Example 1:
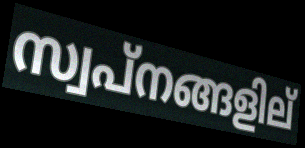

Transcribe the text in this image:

സ്വപ്നങ്ങളില്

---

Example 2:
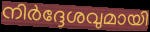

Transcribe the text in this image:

നിർദ്ദേശവുമായി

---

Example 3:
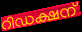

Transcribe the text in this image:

റിഡക്ഷന്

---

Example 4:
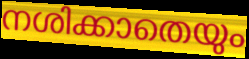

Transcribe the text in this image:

നശിക്കാതെയും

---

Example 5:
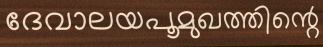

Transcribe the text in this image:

ദേവാലയപൂമുഖത്തിന്റെ